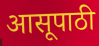
आसूपाठी